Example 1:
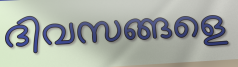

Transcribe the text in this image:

ദിവസങ്ങളെ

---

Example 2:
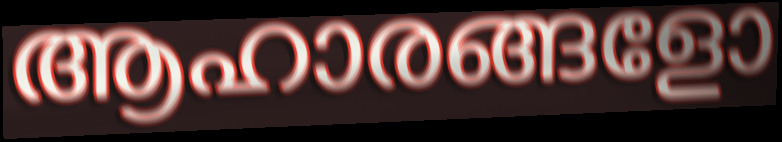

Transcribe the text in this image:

ആഹാരങ്ങളോ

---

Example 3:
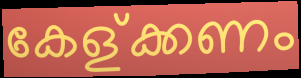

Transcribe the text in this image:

കേള്ക്കണം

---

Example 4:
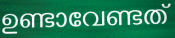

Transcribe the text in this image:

ഉണ്ടാവേണ്ടത്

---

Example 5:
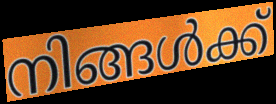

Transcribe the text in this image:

നിങ്ങൾക്ക്